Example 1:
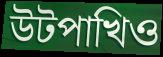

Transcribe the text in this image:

উটপাখিও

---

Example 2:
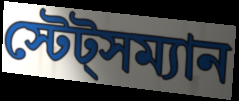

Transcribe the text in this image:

স্টেট্সম্যান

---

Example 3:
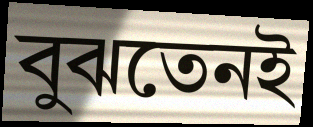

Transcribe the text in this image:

বুঝতেনই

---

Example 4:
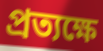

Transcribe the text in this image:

প্রত্যক্ষে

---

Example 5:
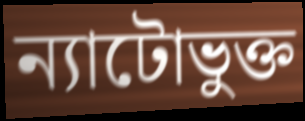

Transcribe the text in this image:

ন্যাটোভুক্ত